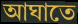
আঘাতে